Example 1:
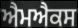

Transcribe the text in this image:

ਐਮਐਕਸ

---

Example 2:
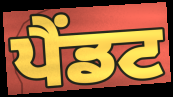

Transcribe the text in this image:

ਪੈਂਡਟ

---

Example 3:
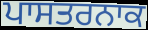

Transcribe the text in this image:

ਪਾਸਤਰਨਾਕ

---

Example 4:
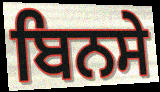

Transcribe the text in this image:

ਬਿਨਸੇ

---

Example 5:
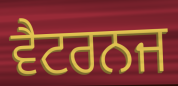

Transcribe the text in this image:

ਵੈਟਰਨਜ